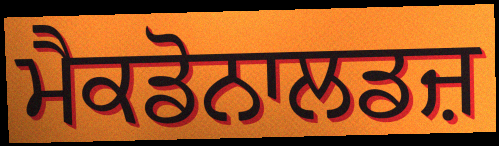
ਮੈਕਡੋਨਾਲਡਜ਼